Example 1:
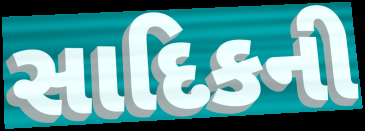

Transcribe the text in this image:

સાદિકની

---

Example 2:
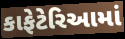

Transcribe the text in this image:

કાફેટેરિઆમાં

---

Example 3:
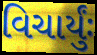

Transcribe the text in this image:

વિચાર્યુંઃ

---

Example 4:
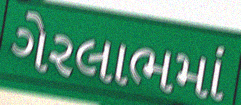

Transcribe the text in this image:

ગેરલાભમાં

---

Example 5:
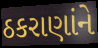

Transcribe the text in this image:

ઠકરાણાંને